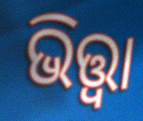
ଭିତ୍ତ୍ୱା